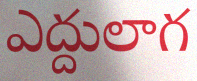
ఎద్దులాగ